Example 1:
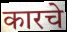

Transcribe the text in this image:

कारचे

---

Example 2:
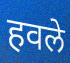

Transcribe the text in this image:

हवले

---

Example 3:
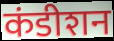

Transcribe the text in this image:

कंडीशन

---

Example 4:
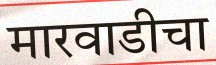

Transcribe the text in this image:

मारवाडीचा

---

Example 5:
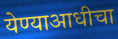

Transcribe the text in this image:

येण्याआधीचा